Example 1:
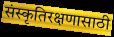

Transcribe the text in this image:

संस्कृतिरक्षणासाठी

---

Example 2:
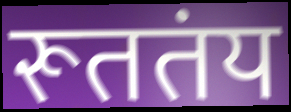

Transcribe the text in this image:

रूततंय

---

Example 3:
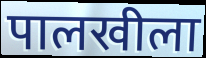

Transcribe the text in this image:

पालखीला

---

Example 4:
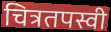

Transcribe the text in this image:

चित्रतपस्वी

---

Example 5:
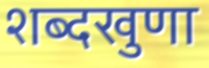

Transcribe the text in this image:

शब्दखुणा